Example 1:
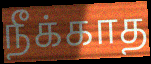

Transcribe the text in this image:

நீக்காத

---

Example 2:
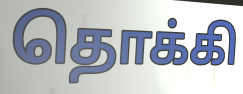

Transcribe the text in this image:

தொக்கி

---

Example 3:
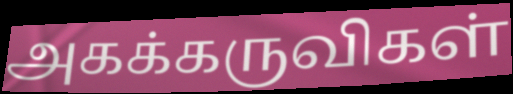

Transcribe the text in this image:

அகக்கருவிகள்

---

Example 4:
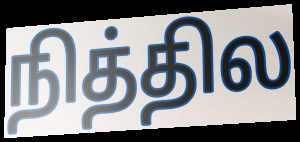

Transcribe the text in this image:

நித்தில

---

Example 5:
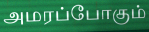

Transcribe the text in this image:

அமரப்போகும்